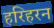
हरिहरन